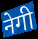
नेगी